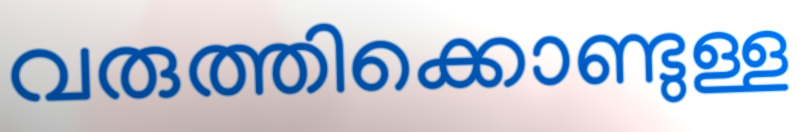
വരുത്തിക്കൊണ്ടുള്ള